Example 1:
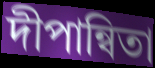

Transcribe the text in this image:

দীপান্বিতা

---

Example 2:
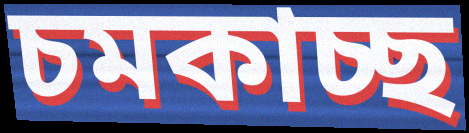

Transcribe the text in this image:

চমকাচ্ছ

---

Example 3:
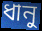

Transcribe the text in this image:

ধানু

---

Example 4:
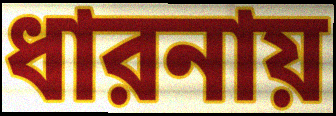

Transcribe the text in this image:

ধারনায়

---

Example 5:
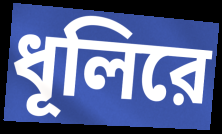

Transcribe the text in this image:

ধূলিরে